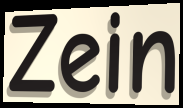
Zein